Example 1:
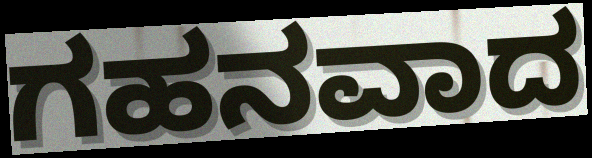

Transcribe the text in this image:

ಗಹನವಾದ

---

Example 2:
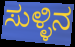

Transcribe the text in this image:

ಸುಳ್ಳಿನ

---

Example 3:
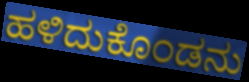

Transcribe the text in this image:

ಹಳಿದುಕೊಂಡನು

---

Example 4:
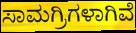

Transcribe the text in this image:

ಸಾಮಗ್ರಿಗಳಾಗಿವೆ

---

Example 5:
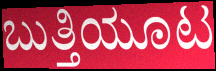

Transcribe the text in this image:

ಬುತ್ತಿಯೂಟ